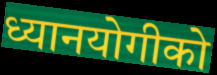
ध्यानयोगीको